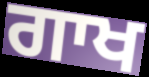
ਗਾਖ